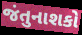
જંતુનાશકો